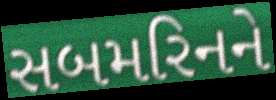
સબમરિનને